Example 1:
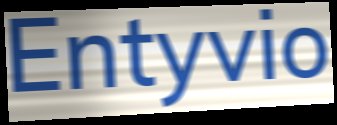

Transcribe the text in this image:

Entyvio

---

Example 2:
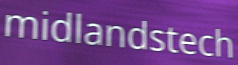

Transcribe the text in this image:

midlandstech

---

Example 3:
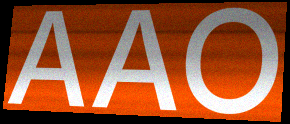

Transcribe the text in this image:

AAO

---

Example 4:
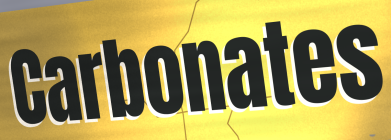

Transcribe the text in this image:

Carbonates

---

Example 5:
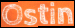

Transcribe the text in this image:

Ostin